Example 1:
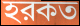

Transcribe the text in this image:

হরকত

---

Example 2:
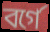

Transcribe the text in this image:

বর্গে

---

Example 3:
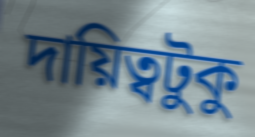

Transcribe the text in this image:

দায়িত্বটুকু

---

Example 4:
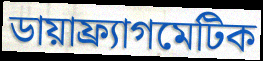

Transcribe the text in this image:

ডায়াফ্র্যাগমেটিক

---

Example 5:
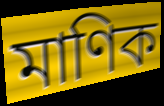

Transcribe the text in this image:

মাণিক